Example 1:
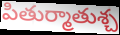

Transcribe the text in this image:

పితుర్మాతుశ్చ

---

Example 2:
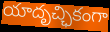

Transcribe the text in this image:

యాదృచ్ఛికంగా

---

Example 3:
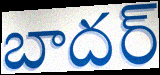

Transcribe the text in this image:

బాదర్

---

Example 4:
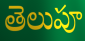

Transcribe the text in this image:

తెలుపూ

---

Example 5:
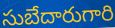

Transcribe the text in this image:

సుబేదారుగారి